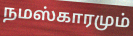
நமஸ்காரமும்